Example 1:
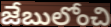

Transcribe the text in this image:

జేబులోంచి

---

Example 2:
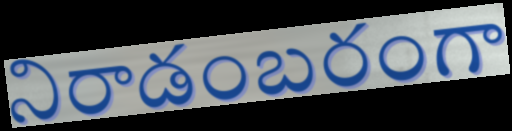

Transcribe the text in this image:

నిరాడంబరంగా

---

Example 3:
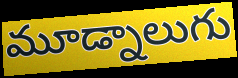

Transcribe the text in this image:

మూడ్నాలుగు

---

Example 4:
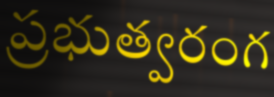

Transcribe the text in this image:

ప్రభుత్వరంగ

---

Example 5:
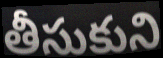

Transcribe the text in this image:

తీసుకుని